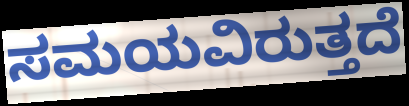
ಸಮಯವಿರುತ್ತದೆ